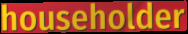
householder